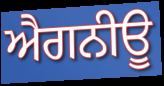
ਐਗਨੀਊ